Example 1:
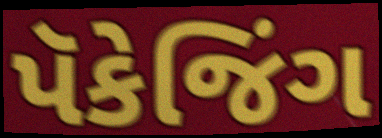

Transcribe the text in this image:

પૅકેજિંગ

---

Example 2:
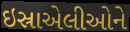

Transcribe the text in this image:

ઇસ્રાએલીઓને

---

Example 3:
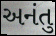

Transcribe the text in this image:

અનંતુ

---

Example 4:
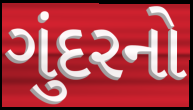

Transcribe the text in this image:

ગુંદરનો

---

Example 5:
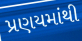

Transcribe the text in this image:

પ્રણયમાંથી